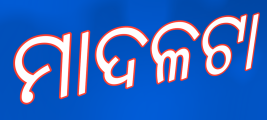
ମାଦଳଟା